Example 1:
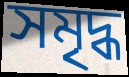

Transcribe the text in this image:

সমৃদ্ধ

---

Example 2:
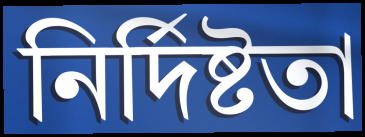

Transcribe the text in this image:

নিৰ্দিষ্টতা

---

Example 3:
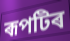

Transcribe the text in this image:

ৰূপটিৰ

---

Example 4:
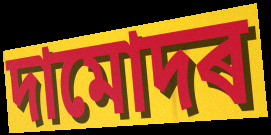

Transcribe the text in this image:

দামোদৰ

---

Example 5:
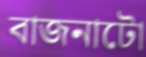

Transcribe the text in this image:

বাজনাটো